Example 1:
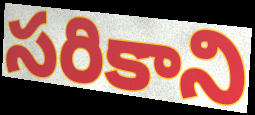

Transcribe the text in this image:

సరికాని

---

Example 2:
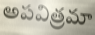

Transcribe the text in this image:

అపవిత్రమా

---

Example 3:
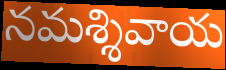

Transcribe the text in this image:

నమశ్శివాయ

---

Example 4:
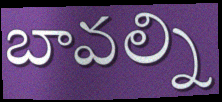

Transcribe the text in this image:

బావల్ని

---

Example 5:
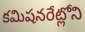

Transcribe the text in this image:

కమిషనరేట్లోని